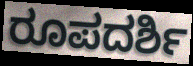
ರೂಪದರ್ಶಿ